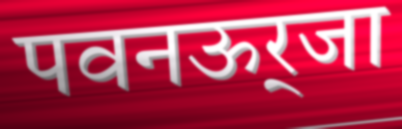
पवनऊर्जा